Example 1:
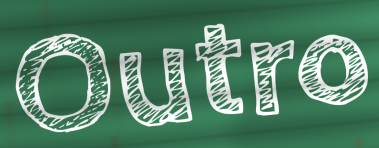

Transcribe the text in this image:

Outro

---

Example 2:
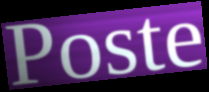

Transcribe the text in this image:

Poste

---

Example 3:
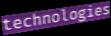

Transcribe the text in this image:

technologies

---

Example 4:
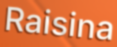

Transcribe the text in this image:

Raisina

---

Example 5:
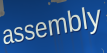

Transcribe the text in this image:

assembly